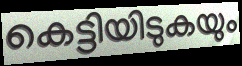
കെട്ടിയിടുകയും